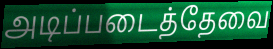
அடிப்படைத்தேவை